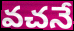
వచనే